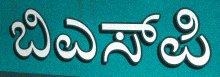
ಬಿಎಸ್‌ಪಿ